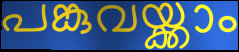
പങ്കുവയ്ക്കാം